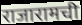
राजारामची